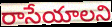
రాసేయాలని